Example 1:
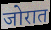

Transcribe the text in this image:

जोरात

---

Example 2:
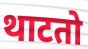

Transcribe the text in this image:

थाटतो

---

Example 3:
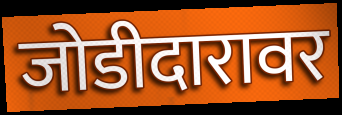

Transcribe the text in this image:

जोडीदारावर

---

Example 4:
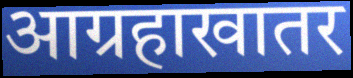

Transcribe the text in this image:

आग्रहाखातर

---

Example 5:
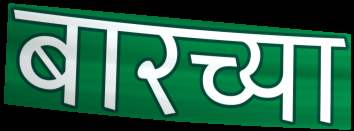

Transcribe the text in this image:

बारच्या